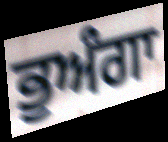
ਭੁਅੰਗਾ